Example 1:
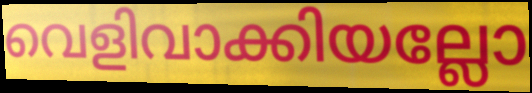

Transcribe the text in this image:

വെളിവാക്കിയല്ലോ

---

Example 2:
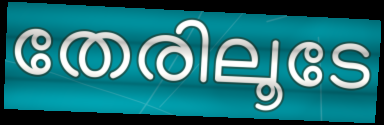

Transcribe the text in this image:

തേരിലൂടേ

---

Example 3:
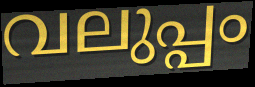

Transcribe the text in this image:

വലുപ്പം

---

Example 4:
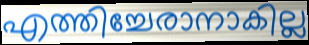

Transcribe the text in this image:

എത്തിച്ചേരാനാകില്ല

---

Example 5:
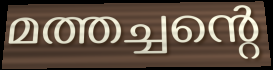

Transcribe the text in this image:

മത്തച്ചന്റെ